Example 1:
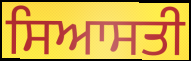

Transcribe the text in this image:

ਸਿਆਸਤੀ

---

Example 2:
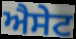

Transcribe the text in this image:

ਐਸੇਟ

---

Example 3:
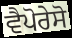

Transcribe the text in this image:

ਵੈਪੋਰੇਸੋ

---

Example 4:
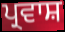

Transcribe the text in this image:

ਪ੍ਰਵਾਸ਼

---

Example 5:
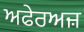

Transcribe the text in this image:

ਅਫੇਰਅਜ਼